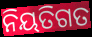
ନିୟତିଗତ